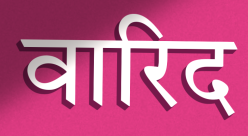
वारिद